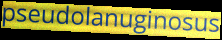
pseudolanuginosus